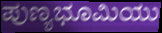
ಪುಣ್ಯಭೂಮಿಯು